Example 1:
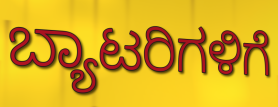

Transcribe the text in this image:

ಬ್ಯಾಟರಿಗಳಿಗೆ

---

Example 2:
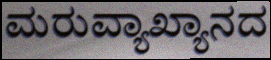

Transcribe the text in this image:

ಮರುವ್ಯಾಖ್ಯಾನದ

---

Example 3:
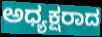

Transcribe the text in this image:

ಅಧ್ಯಕ್ಷರಾದ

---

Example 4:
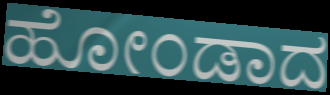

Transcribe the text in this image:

ಹೋಂಡಾದ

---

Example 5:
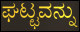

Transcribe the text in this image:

ಘಟ್ಟವನ್ನು